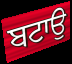
ਬਟਾਉ